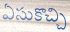
ఏసుకొచ్చి